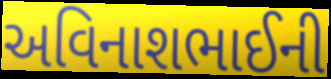
અવિનાશભાઈની